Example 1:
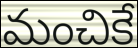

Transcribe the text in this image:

మంచికే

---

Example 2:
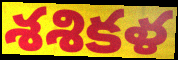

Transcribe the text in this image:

శశికళ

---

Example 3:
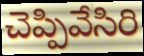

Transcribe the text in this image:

చెప్పివేసిరి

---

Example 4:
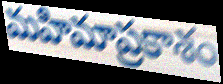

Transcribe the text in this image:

మహిమాప్రకాశం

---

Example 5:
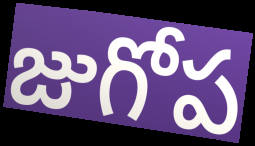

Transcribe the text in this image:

జుగోప